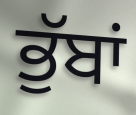
ਭੁੱਬਾਂ